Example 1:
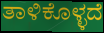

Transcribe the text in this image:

ತಾಳಿಕೊಳ್ಳದೆ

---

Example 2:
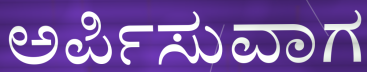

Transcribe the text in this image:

ಅರ್ಪಿಸುವಾಗ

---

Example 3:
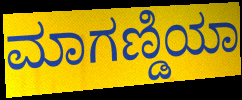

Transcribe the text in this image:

ಮಾಗಣ್ಡಿಯಾ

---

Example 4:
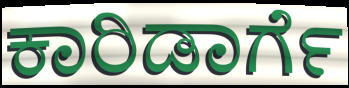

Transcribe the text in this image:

ಕಾರಿಡಾರ್ಗೆ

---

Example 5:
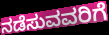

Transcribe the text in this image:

ನಡೆಸುವವರಿಗೆ